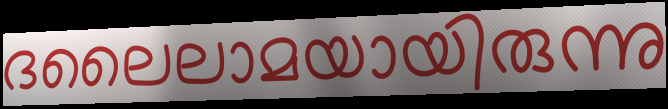
ദലൈലാമയായിരുന്നു